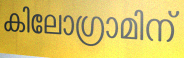
കിലോഗ്രാമിന്